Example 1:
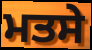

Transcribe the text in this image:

ਮਤਸੇ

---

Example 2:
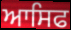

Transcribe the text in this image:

ਆਸਿਫ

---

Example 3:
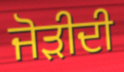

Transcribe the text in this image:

ਜੋੜੀਦੀ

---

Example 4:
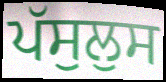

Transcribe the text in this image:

ਪੱਸੁਲੁਸ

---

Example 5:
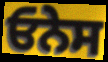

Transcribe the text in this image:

ਓਨੇਸ